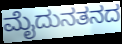
ಮೈದುನತನದ